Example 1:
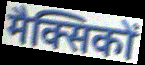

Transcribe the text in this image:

मैक्सिकों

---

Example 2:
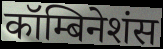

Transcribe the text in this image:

कॉम्बिनेशंस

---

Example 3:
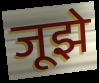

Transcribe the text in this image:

जूझे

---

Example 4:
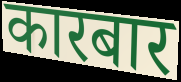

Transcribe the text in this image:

कारबार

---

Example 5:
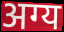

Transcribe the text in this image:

अग्य